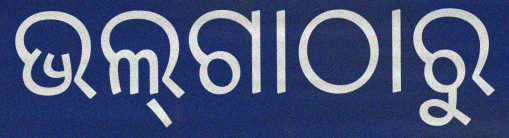
ଭଲ୍‌ଗାଠାରୁ